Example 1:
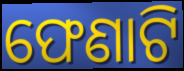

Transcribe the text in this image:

ଫେଣାଟି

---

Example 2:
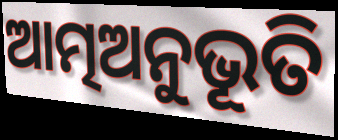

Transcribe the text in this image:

ଆତ୍ମଅନୁଭୂତି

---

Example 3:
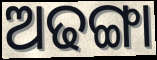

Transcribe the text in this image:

ଅଢଙ୍ଗା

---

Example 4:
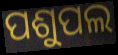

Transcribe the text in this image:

ପଶୁପଲ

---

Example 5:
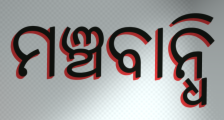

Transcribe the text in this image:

ମଞ୍ଚବାନ୍ଧି